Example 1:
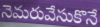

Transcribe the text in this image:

నెమరువేసుకొనే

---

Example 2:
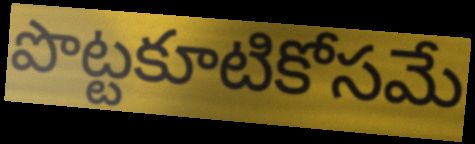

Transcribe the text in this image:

పొట్టకూటికోసమే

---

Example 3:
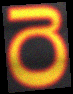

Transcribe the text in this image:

రె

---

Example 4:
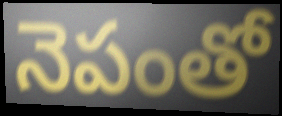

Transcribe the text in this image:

నెపంతో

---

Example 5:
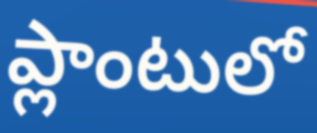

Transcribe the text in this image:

ప్లాంటులో